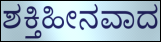
ಶಕ್ತಿಹೀನವಾದ